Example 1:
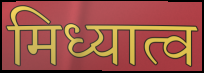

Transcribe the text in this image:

मिध्यात्व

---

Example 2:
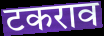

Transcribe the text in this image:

टकराव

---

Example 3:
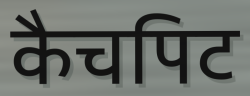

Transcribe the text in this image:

कैचपिट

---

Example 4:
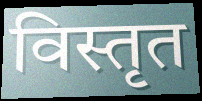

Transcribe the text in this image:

विस्तृत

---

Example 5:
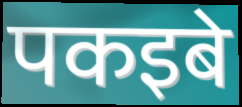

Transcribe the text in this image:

पकइबे